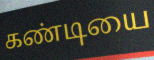
கண்டியை